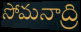
సోమనాద్రి